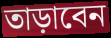
তাড়াবেন